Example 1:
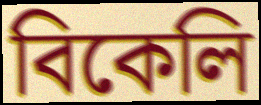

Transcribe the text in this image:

বিকেলি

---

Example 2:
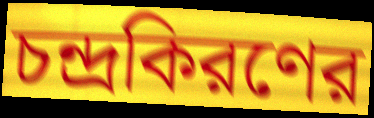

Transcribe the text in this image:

চন্দ্রকিরণের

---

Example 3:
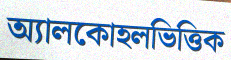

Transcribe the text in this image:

অ্যালকোহলভিত্তিক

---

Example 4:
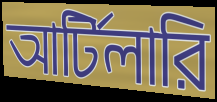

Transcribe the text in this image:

আর্টিলারি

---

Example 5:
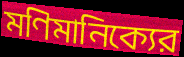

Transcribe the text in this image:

মণিমানিক্যের